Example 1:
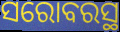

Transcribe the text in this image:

ସରୋବରସ୍ଥ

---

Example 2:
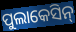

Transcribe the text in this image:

ପୁଲାକେସିନ୍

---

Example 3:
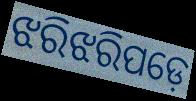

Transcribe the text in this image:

ଝରିଝରିପଡ଼େ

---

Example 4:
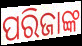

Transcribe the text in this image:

ପରିଜାଙ୍କ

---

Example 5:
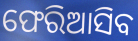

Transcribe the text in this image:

ଫେରିଆସିବ